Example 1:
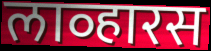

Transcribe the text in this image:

लाव्हारस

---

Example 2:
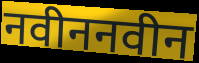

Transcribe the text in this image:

नवीननवीन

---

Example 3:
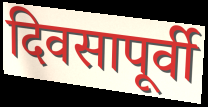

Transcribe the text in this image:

दिवसापूर्वी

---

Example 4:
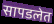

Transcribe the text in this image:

सापडलेत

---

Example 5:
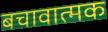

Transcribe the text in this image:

बचावात्मक